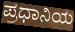
ಪ್ರಧಾನಿಯ